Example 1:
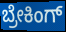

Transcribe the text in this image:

ಬ್ರೇಕಿಂಗ್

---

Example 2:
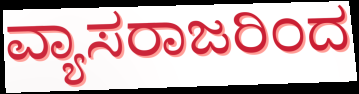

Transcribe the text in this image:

ವ್ಯಾಸರಾಜರಿಂದ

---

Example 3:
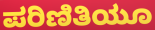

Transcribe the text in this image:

ಪರಿಣಿತಿಯೂ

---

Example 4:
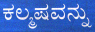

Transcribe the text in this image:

ಕಲ್ಮಷವನ್ನು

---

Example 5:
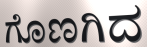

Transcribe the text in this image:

ಗೊಣಗಿದ